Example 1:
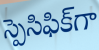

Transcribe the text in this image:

స్పెసిఫిక్‌గా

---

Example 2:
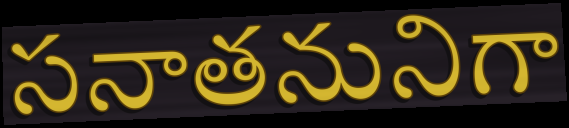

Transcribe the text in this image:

సనాతనునిగా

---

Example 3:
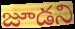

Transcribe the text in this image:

జూడని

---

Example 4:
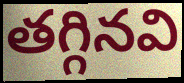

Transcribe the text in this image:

తగ్గినవి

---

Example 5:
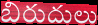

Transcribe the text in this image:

బిరుదులు